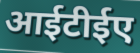
आईटीईए